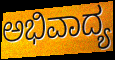
ಅಭಿವಾದ್ಯ